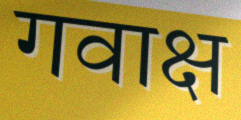
गवाक्ष